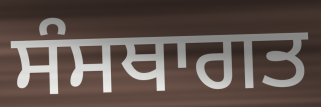
ਸੰਸਥਾਗਤ